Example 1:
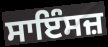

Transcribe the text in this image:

ਸਾਇੰਸਜ਼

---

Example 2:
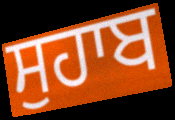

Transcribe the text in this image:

ਸੁਹਾਬ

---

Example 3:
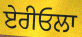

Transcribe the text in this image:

ਏਰੀਓਲਾ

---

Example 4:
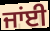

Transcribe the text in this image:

ਜਾਂਈ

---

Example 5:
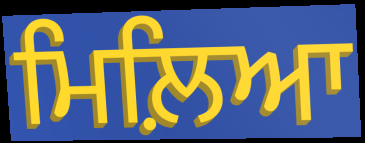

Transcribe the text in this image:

ਮਿਲ਼ਿਆ